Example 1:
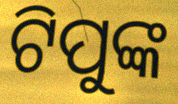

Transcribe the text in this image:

ଟିପୁଙ୍କ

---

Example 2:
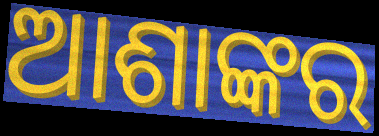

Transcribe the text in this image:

ଆଶାଙ୍କର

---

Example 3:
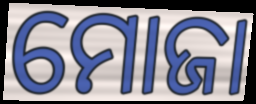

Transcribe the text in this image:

ମୋଜା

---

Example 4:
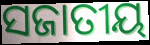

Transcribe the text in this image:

ସଜାତୀୟ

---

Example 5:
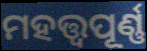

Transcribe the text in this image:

ମହତ୍ତ୍ଵପୂର୍ଣ୍ଣ